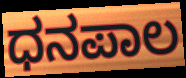
ಧನಪಾಲ